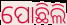
ପୋଛିଲି